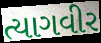
ત્યાગવીર